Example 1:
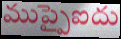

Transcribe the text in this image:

ముప్పైఐదు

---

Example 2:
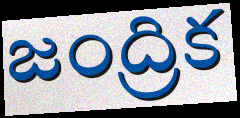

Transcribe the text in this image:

జంద్రిక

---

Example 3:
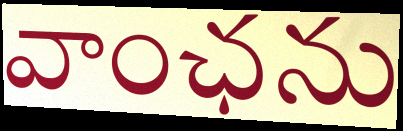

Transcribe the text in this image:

వాంఛను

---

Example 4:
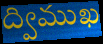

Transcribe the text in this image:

ద్విముఖ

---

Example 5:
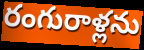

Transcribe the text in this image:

రంగురాళ్లను